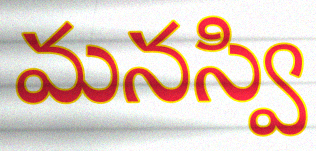
మనస్వి